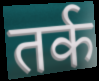
तर्क